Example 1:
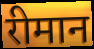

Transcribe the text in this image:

रीमान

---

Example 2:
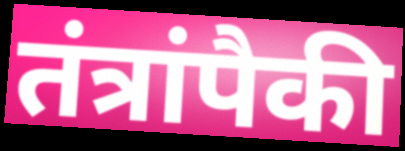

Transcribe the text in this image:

तंत्रांपैकी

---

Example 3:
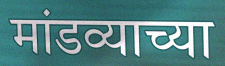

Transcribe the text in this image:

मांडव्याच्या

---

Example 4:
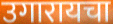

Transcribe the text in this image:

उगारायचा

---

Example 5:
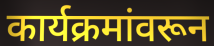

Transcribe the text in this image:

कार्यक्रमांवरून